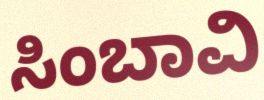
ಸಿಂಬಾವಿ